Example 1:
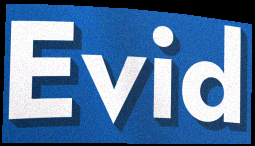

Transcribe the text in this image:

Evid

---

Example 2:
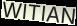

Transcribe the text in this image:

WITIAN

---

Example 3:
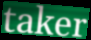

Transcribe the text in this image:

taker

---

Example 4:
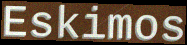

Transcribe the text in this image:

Eskimos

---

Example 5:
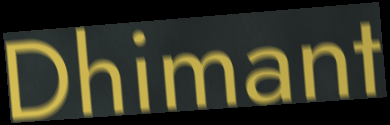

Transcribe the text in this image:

Dhimant